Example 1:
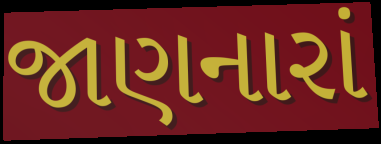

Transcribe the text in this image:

જાણનારાં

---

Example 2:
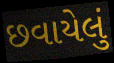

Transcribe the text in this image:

છવાયેલું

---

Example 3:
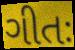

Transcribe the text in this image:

ગીતઃ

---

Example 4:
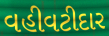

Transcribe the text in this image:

વહીવટીદાર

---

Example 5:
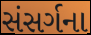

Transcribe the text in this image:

સંસર્ગના